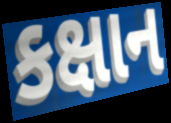
કક્ષાન